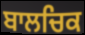
ਬਾਲਚਿਕ